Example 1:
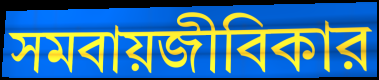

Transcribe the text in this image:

সমবায়জীবিকার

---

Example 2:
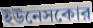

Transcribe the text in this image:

ইউনেসকোর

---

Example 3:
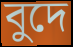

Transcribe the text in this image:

বুদে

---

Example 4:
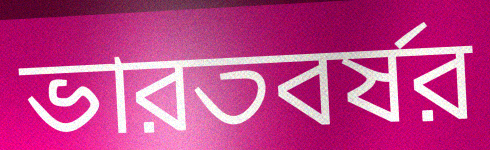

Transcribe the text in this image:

ভারতবর্ষর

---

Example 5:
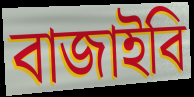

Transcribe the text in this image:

বাজাইবি